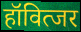
हॉवित्जर